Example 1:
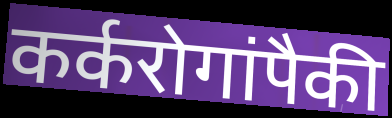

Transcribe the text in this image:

कर्करोगांपैकी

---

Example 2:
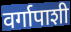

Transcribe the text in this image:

वर्गापाशी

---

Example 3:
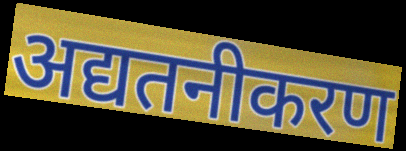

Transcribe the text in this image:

अद्यतनीकरण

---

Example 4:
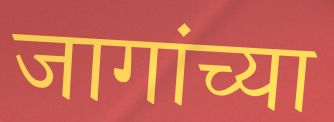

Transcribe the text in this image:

जागांच्या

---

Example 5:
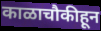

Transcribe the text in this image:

काळाचौकीहून